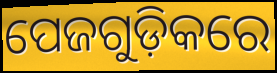
ପେଜଗୁଡ଼ିକରେ